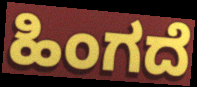
ಹಿಂಗದೆ